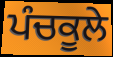
ਪੰਚਕੂਲੇ